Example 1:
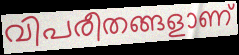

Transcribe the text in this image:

വിപരീതങ്ങളാണ്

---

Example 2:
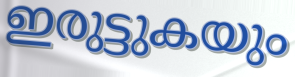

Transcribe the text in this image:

ഇരുട്ടുകയും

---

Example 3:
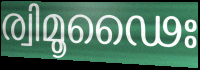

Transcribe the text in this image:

ര്വിമൂഢൈഃ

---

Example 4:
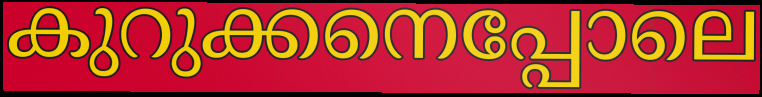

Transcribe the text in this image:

കുറുക്കനെപ്പോലെ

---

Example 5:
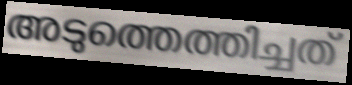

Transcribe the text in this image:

അടുത്തെത്തിച്ചത്